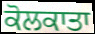
ਕੋਲਕਾਤਾ